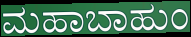
ಮಹಾಬಾಹುಂ